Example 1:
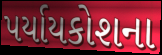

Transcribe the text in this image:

પર્યાયકોશના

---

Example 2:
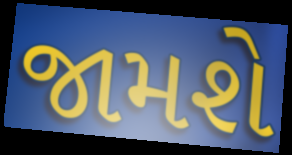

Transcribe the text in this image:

જામશે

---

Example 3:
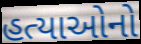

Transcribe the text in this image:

હત્યાઓનો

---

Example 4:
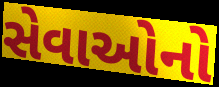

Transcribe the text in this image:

સેવાઓનો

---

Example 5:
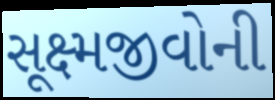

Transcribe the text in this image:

સૂક્ષ્મજીવોની